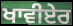
ਖਾਵੀਏਰ